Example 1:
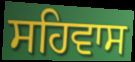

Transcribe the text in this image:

ਸਹਿਵਾਸ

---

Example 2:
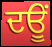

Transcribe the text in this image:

ਦਊਂ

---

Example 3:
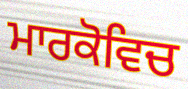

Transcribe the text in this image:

ਮਾਰਕੋਵਿਚ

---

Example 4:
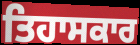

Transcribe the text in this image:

ਤਿਹਾਸਕਾਰ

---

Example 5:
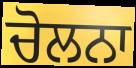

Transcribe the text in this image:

ਚੋਲਨਾ